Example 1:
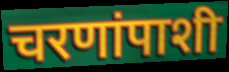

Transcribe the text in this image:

चरणांपाशी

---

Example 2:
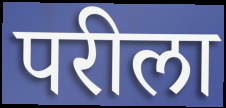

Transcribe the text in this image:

परीला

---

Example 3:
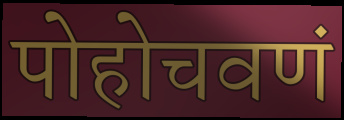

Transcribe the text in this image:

पोहोचवणं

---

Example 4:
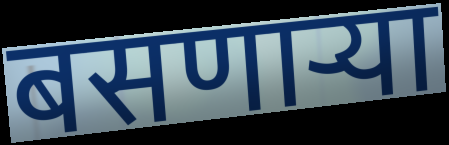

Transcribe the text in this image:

बसणार्‍या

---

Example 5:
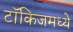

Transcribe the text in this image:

टॉकिजमध्ये